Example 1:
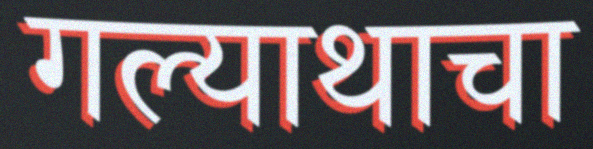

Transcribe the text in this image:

गल्याथाचा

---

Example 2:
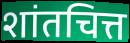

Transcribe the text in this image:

शांतचित्त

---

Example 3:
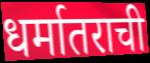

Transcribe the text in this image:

धर्मातराची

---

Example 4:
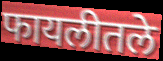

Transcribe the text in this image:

फायलीतले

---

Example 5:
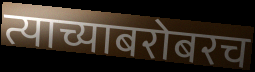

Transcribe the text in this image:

त्याच्याबरोबरच